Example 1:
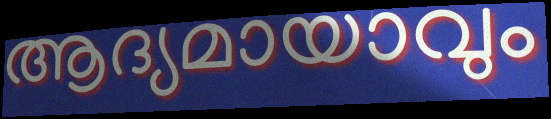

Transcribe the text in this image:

ആദ്യമായാവും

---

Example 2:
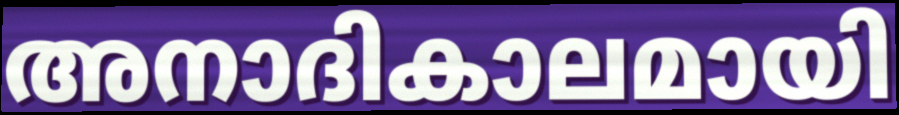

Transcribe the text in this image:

അനാദികാലമായി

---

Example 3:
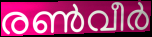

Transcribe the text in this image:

രൺവീർ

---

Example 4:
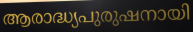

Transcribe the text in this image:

ആരാദ്ധ്യപുരുഷനായി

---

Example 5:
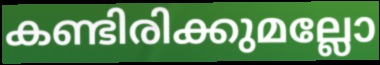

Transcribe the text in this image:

കണ്ടിരിക്കുമല്ലോ